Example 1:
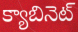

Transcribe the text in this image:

క్యాబినెట్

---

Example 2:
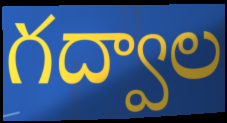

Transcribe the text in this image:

గద్వాల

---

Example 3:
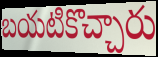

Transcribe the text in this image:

బయటికొచ్చారు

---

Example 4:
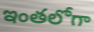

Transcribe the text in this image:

ఇంతలోగా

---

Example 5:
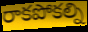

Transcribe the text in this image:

రాకపోకల్ని